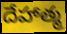
దేహాత్మ